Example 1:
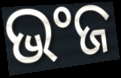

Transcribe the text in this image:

ଭଂଜ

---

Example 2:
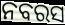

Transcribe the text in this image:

ନବରସ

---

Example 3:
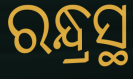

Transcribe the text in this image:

ରନ୍ଧ୍ରସ୍ଥ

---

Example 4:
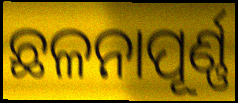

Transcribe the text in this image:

ଛଳନାପୂର୍ଣ୍ଣ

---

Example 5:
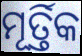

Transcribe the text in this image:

ମୂର୍ତ୍ତିକ